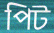
পিট